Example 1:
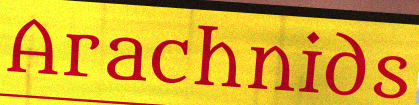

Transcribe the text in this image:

Arachnids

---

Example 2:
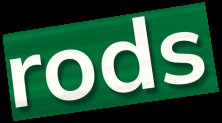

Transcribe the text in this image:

rods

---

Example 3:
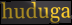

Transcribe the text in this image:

huduga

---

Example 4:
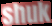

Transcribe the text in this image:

shuk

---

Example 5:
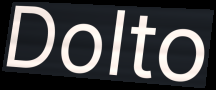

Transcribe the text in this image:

Dolto